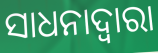
ସାଧନାଦ୍ଵାରା